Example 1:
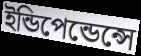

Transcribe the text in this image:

ইন্ডিপেন্ডেন্সে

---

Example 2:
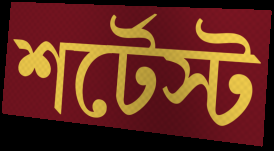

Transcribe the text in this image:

শর্টেস্ট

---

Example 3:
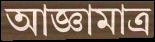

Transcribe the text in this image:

আজ্ঞামাত্র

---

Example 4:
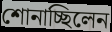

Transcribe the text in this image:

শোনাচ্ছিলেন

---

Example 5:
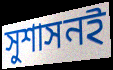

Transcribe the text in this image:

সুশাসনই